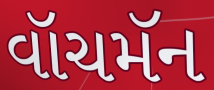
વૉચમૅન